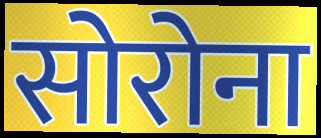
सोरोना